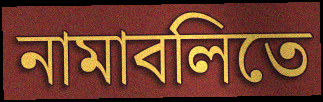
নামাবলিতে